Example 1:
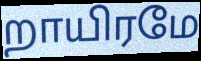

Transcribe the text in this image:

றாயிரமே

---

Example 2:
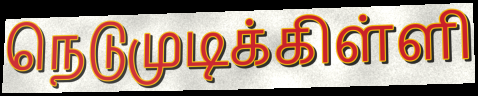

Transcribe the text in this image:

நெடுமுடிக்கிள்ளி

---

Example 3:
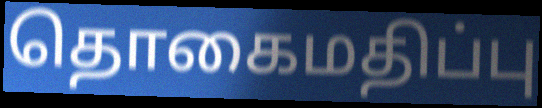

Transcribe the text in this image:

தொகைமதிப்பு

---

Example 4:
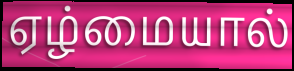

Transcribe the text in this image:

ஏழ்மையால்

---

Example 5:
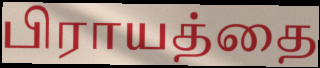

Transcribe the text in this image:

பிராயத்தை